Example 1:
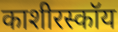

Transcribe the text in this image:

काशीरस्कॉय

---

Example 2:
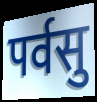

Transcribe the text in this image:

पर्वसु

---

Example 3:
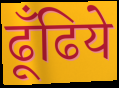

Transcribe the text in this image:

ढूँढिये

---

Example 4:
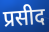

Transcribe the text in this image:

प्रसीद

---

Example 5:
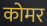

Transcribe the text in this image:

कोमर